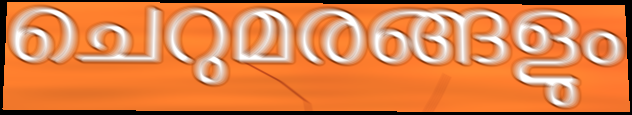
ചെറുമരങ്ങളും